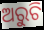
ଅରୁଚି